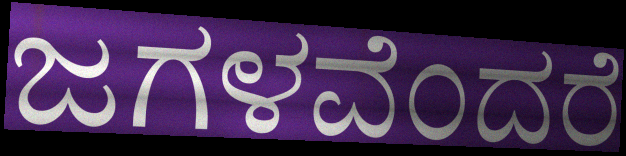
ಜಗಳವೆಂದರೆ